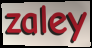
zaley